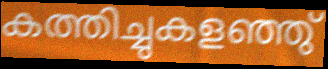
കത്തിച്ചുകളഞ്ഞു്